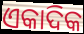
ଏକାଦିକ